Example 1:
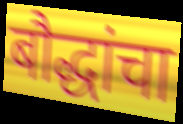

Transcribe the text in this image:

बौद्धांचा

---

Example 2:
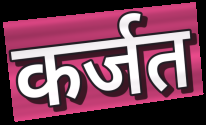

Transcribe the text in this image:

कर्जत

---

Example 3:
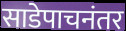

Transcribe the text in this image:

साडेपाचनंतर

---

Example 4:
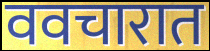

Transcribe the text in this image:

ववचारात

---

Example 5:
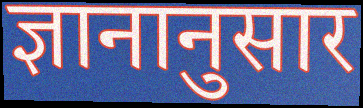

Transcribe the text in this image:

ज्ञानानुसार